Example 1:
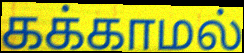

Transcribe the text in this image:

கக்காமல்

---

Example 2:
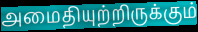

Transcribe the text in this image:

அமைதியுற்றிருக்கும்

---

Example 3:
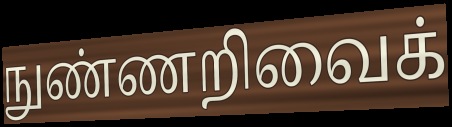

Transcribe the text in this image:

நுண்ணறிவைக்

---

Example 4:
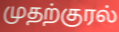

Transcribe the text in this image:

முதற்குரல்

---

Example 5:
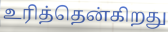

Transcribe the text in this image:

உரித்தென்கிறது